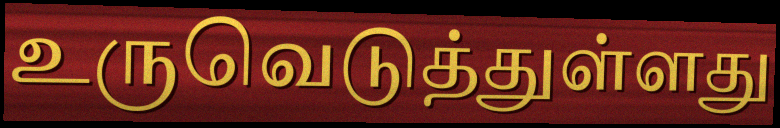
உருவெடுத்துள்ளது